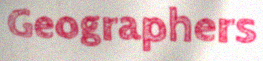
Geographers